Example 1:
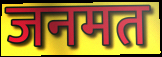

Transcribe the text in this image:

जनमत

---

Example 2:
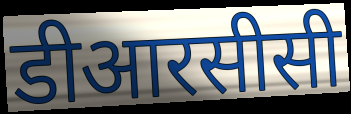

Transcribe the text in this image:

डीआरसीसी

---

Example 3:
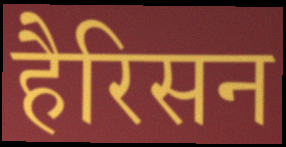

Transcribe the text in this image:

हैरिसन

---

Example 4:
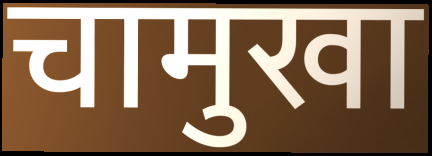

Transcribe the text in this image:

चामुखा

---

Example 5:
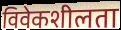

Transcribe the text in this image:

विवेकशीलता